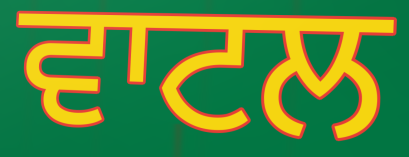
ਵਾਟਲ